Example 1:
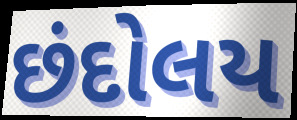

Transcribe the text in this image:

છંદોલય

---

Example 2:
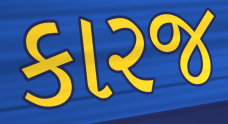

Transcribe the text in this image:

કારજ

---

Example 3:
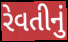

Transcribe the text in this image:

રેવતીનું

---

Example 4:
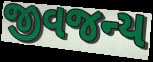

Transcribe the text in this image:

જીવજન્ય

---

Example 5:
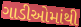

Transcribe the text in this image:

ગાડીઓમાંથી